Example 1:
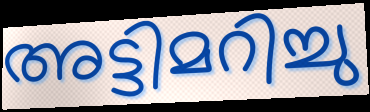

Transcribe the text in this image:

അട്ടിമറിച്ചു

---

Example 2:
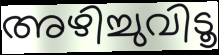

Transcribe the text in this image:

അഴിച്ചുവിടൂ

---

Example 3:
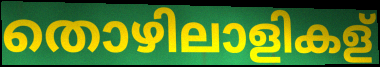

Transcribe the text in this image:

തൊഴിലാളികള്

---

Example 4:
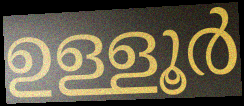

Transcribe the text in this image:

ഉള്ളൂർ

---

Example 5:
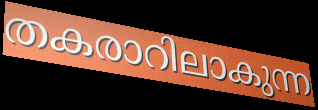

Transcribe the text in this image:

തകരാറിലാകുന്ന